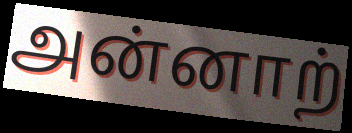
அன்னாற்